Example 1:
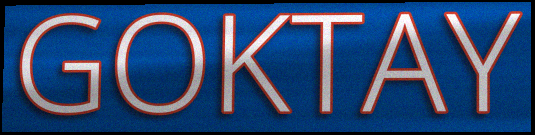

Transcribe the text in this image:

GOKTAY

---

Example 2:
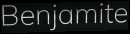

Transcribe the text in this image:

Benjamite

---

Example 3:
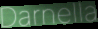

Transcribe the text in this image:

Darnella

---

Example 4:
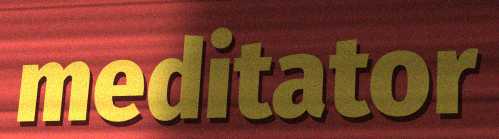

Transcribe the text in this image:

meditator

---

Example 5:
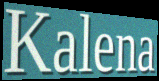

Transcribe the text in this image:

Kalena